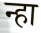
न्हा